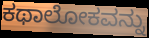
ಕಥಾಲೋಕವನ್ನು